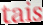
tais